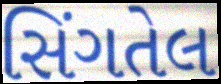
સિંગતેલ